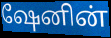
ஷேனின்